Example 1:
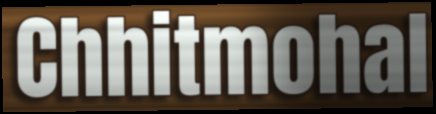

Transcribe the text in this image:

Chhitmohal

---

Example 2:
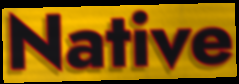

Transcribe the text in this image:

Native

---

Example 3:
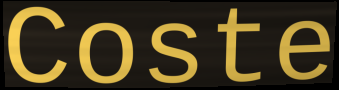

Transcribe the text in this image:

Coste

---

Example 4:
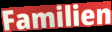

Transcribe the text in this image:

Familien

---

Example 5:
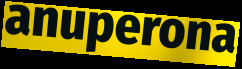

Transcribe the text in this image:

anuperona